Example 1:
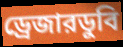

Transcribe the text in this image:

ড্রেজারডুবি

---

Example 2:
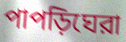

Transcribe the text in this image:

পাপড়িঘেরা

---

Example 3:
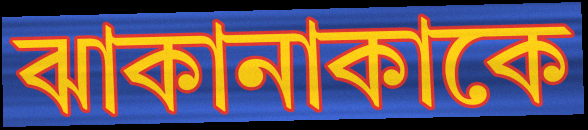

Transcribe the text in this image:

ঝাকানাকাকে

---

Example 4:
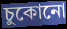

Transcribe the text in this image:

চুকোনো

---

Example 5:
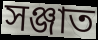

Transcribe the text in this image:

সঞ্জাত